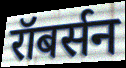
रॉबर्सन